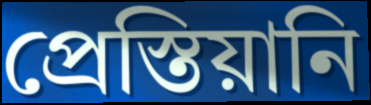
প্রেস্তিয়ানি